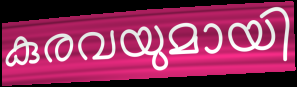
കുരവയുമായി